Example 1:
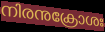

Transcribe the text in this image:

നിരനുക്രോശഃ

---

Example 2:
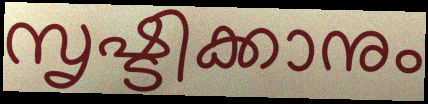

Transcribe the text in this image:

സൃഷ്ടിക്കാനും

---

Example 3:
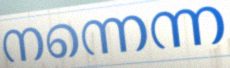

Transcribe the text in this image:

നന്നെന്ന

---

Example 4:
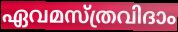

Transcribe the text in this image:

ഏവമസ്ത്രവിദാം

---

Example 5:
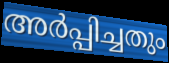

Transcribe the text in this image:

അർപ്പിച്ചതും